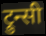
ट्रुन्सी